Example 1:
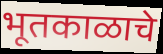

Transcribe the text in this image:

भूतकाळाचे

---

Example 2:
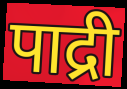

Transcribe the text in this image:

पाद्री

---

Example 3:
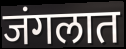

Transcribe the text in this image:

जंगलात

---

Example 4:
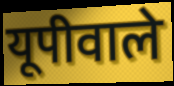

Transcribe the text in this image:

यूपीवाले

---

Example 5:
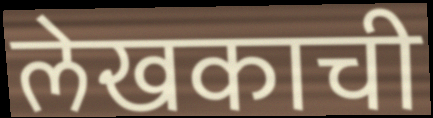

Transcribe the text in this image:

लेखकाची